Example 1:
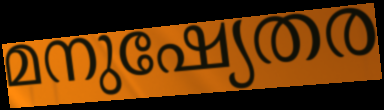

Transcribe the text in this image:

മനുഷ്യേതര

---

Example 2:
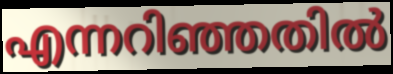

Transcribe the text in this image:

എന്നറിഞ്ഞതിൽ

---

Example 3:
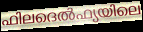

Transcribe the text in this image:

ഫിലദെൽഫ്യയിലെ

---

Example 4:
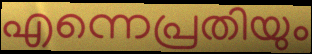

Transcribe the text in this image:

എന്നെപ്രതിയും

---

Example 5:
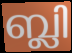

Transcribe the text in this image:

ബ്ലി